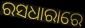
ରସଧାରାରେ